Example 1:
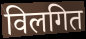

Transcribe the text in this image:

विलगित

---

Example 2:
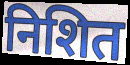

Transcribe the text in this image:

निशित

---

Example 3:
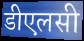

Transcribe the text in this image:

डीएलसी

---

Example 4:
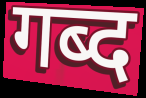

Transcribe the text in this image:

गब्द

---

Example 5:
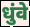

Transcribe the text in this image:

धुंवे